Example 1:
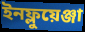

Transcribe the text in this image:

ইনফ্লুয়েঞ্জা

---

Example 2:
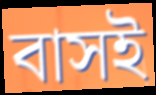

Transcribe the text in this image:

বাসই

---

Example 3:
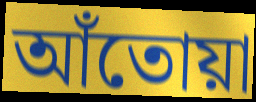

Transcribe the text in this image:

আঁতোয়া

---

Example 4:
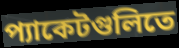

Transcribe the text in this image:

প্যাকেটগুলিতে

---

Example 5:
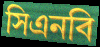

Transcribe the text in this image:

সিএনবি